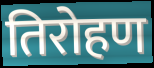
तिरोहण